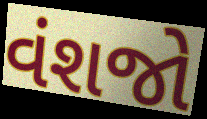
વંશજો